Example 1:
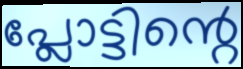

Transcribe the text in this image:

പ്ലോട്ടിന്റെ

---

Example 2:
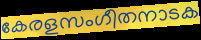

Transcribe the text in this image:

കേരളസംഗീതനാടക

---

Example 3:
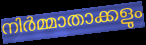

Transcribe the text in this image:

നിർമ്മാതാക്കളും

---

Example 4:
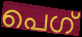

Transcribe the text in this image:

പെഗ്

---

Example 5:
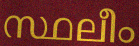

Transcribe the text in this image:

സ്ഥലീം